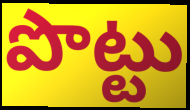
పొట్టు